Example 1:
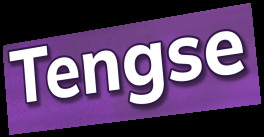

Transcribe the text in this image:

Tengse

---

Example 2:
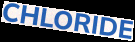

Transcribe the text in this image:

CHLORIDE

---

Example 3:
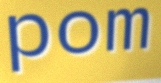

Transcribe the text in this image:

pom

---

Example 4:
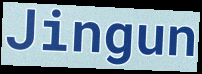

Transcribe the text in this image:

Jingun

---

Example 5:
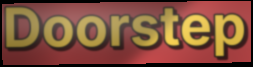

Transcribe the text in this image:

Doorstep